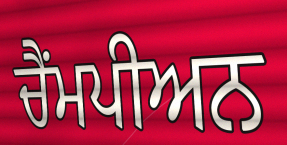
ਚੈਂਮਪੀਅਨ